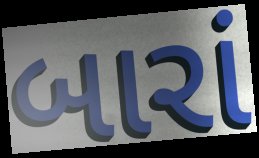
બારાં